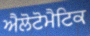
ਐਲੋਟੋਮੈਟਿਕ